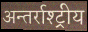
अन्तर्राश्ट्रीय